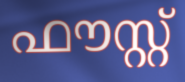
ഫൗസ്റ്റ്